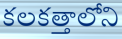
కలకత్తాలోని